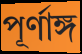
পূর্ণাঙ্গ